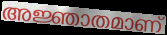
അജ്ഞാതമാണ്